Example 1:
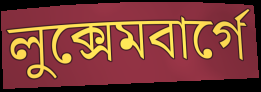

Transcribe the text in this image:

লুক্সেমবার্গে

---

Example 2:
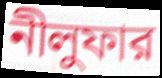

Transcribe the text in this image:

নীলুফার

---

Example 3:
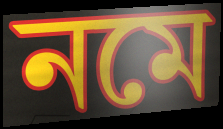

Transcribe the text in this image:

নমে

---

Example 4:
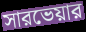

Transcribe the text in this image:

সারভেয়ার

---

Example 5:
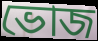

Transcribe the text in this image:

ভোজ